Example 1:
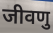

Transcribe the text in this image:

जीवणु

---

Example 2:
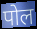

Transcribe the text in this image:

पोल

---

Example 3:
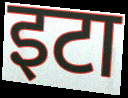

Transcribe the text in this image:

इटा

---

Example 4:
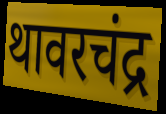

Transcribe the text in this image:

थावरचंद्र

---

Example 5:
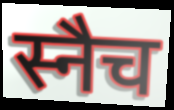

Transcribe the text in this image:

स्नैच